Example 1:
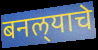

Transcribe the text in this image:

बनल्याचे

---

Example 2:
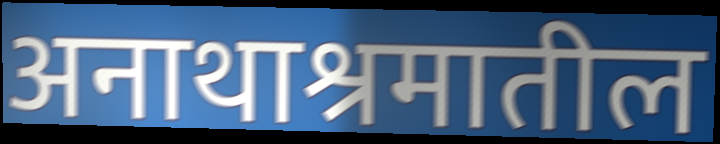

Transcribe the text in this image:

अनाथाश्रमातील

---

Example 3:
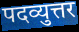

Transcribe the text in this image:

पदव्युत्तर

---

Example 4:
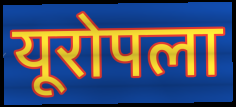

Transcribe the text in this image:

यूरोपला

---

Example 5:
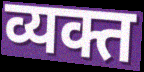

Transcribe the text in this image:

व्यक्त